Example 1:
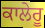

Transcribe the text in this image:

ਕਾਲੇਰੂ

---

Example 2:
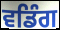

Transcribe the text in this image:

ਵਡਿੰਗ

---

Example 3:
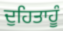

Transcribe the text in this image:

ਦੁਹਿਤਾਹੂੰ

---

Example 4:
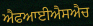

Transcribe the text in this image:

ਐਫਆਈਐਸਐਚ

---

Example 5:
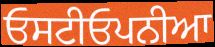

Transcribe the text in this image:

ਓਸਟੀਓਪਨੀਆ